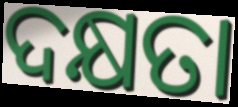
ଦକ୍ଷତା